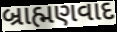
બ્રાહ્મણવાદ